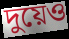
দুয়েও